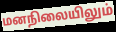
மனநிலையிலும்